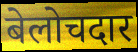
बेलोचदार